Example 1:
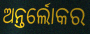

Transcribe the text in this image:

ଅନ୍ତର୍ଲୋକର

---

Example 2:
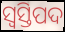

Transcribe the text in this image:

ସ୍ବସ୍ତିପଦ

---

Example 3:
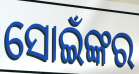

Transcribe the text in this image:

ସୋଇଁଙ୍କର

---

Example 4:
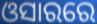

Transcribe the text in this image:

ଓସାରରେ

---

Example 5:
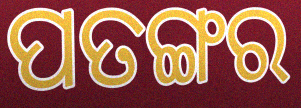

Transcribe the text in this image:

ପତଙ୍ଗର